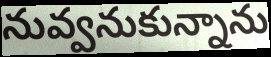
నువ్వనుకున్నాను